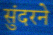
सुंदरने